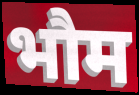
भौम